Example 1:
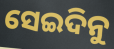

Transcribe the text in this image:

ସେଇଦିନୁ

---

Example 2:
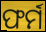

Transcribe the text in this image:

ଫର୍ମ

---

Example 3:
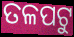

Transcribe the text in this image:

ତଳପଟୁ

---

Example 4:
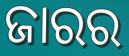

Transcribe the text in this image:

ଜାରର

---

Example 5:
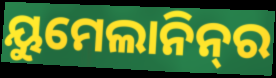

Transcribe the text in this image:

ୟୁମେଲାନିନ୍‌ର